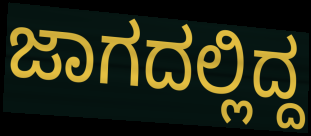
ಜಾಗದಲ್ಲಿದ್ದ